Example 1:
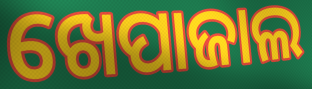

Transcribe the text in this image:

ଖେପାଜାଲ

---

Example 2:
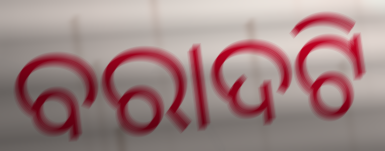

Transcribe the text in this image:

ବରାଦଟି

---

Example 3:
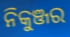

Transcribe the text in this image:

ନିକୁଞ୍ଜର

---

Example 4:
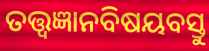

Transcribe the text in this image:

ତତ୍ତ୍ୱଜ୍ଞାନବିଷୟବସ୍ତୁ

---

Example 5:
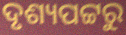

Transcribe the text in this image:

ଦୃଶ୍ୟପଟ୍ଟରୁ